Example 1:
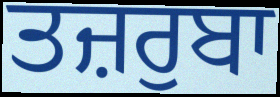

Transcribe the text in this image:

ਤਜ਼ਰੁਬਾ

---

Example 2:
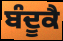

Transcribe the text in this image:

ਬੰਦੂਕੈ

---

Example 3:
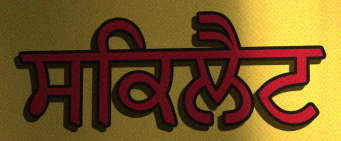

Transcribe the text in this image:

ਸਕਿਲੈਟ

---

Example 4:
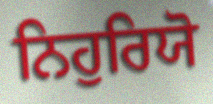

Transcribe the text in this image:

ਨਿਹੁਰਿਯੋ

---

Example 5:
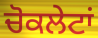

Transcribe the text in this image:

ਚੋਕਲੇਟਾਂ